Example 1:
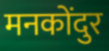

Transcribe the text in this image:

मनकोंदुर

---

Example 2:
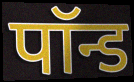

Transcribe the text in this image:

पॉन्ड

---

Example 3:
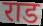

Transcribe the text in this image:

राड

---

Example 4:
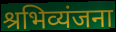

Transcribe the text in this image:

श्रभिव्यंजना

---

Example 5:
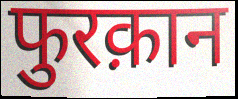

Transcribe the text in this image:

फुरक़ान